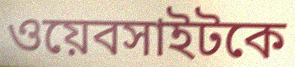
ওয়েবসাইটকে